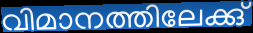
വിമാനത്തിലേക്കു്